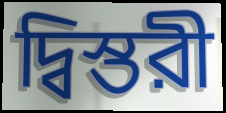
দ্বিস্তরী